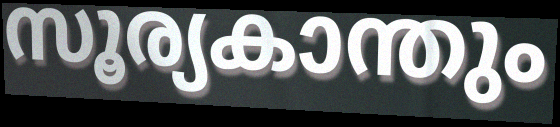
സൂര്യകാന്തും